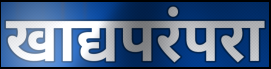
खाद्यपरंपरा